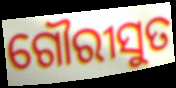
ଗୌରୀସୁତ